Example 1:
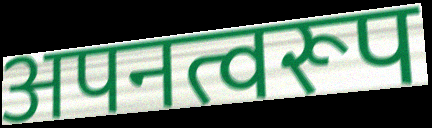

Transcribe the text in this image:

अपनत्वरूप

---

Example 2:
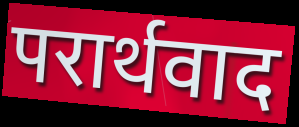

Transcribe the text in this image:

परार्थवाद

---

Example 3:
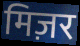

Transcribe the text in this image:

मिज़र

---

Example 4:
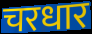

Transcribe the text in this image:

चरधार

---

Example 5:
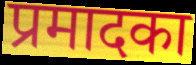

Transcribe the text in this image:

प्रमादका